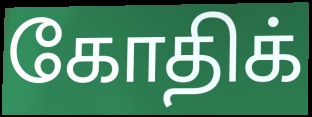
கோதிக்